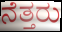
ನೆತ್ತರು